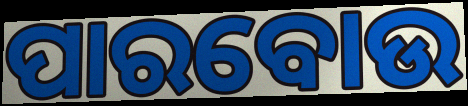
ପାରବୋଉ